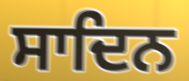
ਸਾਦਿਨ